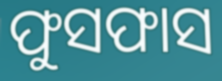
ଫୁସଫାସ